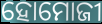
ହୋମୋଜୀ